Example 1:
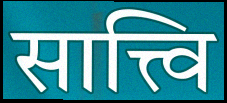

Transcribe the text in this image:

सात्त्वि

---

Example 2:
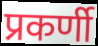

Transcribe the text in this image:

प्रकर्णी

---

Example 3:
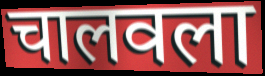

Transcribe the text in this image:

चालवला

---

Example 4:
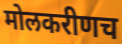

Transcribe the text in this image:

मोलकरीणच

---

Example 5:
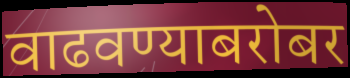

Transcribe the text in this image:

वाढवण्याबरोबर